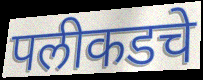
पलीकडचे